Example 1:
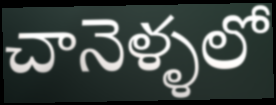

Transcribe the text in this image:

చానెళ్ళలో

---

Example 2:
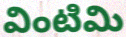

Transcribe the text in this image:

వింటిమి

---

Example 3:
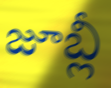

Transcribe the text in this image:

జూబ్లీ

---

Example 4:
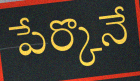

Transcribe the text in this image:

పేర్కొనే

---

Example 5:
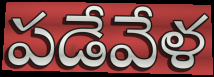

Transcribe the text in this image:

పడేవేళ